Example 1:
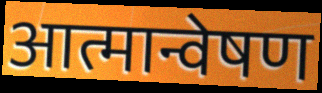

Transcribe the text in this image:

आत्मान्वेषण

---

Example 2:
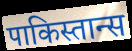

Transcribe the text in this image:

पाकिस्तान्स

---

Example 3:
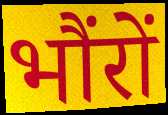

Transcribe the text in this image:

भौंरों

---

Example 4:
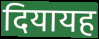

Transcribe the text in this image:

दियायह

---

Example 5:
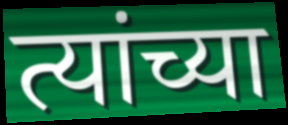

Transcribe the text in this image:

त्यांच्या